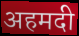
अहमदी